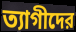
ত্যাগীদের